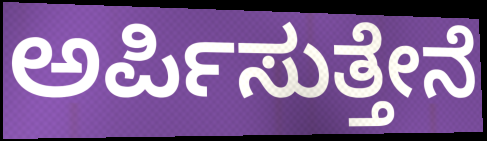
ಅರ್ಪಿಸುತ್ತೇನೆ